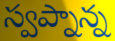
స్వప్నాన్న